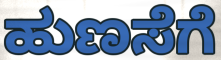
ಹುಣಸೆಗೆ